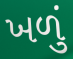
ખળું